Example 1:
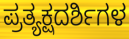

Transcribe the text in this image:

ಪ್ರತ್ಯಕ್ಷದರ್ಶಿಗಳ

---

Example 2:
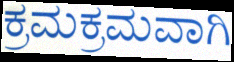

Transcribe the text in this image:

ಕ್ರಮಕ್ರಮವಾಗಿ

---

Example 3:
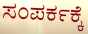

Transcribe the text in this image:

ಸಂಪರ್ಕಕ್ಕೆ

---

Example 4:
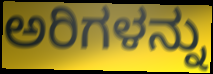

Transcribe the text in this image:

ಅರಿಗಳನ್ನು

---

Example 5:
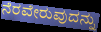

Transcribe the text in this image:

ನೆರವೇರುವುದನ್ನು